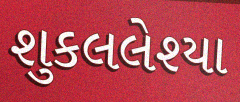
શુકલલેશ્યા